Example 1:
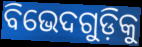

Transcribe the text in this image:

ବିଭେଦଗୁଡ଼ିକୁ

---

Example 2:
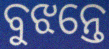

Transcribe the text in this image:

ବୁଝନ୍ତେ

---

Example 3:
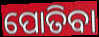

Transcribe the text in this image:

ପୋତିବା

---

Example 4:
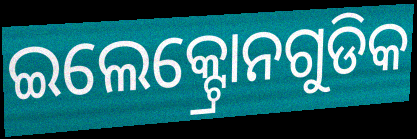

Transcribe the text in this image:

ଇଲେକ୍ଟ୍ରୋନଗୁଡିକ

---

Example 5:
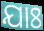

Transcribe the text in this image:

ଯାଃ